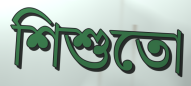
শিশুতো